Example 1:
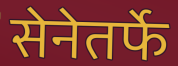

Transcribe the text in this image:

सेनेतर्फे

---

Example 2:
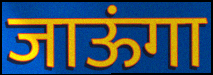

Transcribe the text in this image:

जाऊंगा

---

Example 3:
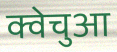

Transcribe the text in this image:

क्वेचुआ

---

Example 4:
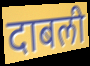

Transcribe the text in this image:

दाबली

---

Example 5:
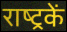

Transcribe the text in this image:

राष्ट्रकें